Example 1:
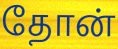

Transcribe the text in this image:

தோன்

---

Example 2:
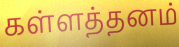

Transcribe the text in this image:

கள்ளத்தனம்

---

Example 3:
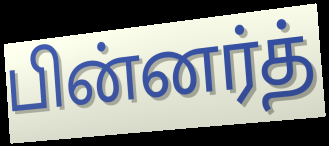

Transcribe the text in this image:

பின்னர்த்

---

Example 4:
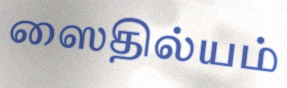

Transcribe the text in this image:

ஸைதில்யம்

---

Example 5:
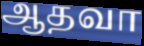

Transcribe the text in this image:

ஆதவா